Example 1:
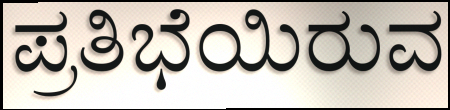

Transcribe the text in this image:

ಪ್ರತಿಭೆಯಿರುವ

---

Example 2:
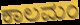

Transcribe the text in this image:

ಕಾಲಮಂ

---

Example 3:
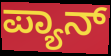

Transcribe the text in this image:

ಪ್ಯಾನ್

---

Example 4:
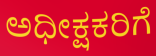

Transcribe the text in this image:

ಅಧೀಕ್ಷಕರಿಗೆ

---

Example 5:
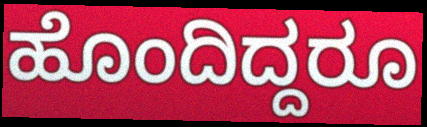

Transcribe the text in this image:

ಹೊಂದಿದ್ದರೂ